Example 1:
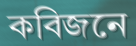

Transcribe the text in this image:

কবিজনে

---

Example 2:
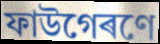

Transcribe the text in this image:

ফাউগেৰণে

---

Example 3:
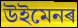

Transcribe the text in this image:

উইমেনৰ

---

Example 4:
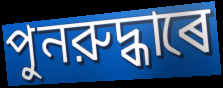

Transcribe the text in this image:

পুনৰুদ্ধাৰে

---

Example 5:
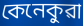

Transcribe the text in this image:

কেনেকুৱা